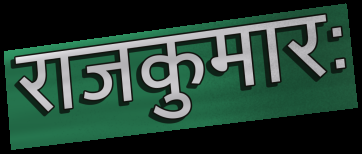
राजकुमारः